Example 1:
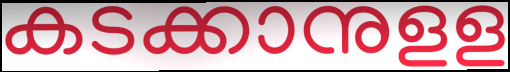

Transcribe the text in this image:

കടക്കാനുളള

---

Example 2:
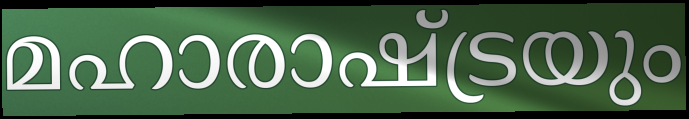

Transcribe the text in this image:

മഹാരാഷ്ട്രയും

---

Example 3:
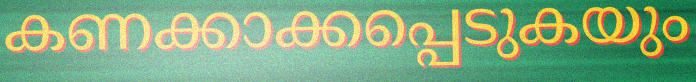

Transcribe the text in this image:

കണക്കാക്കപ്പെടുകയും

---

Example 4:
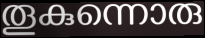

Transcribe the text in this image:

തൂകുന്നൊരു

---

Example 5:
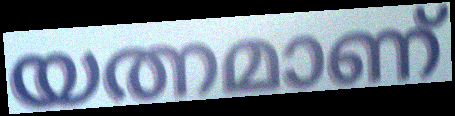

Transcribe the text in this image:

യത്നമാണ്